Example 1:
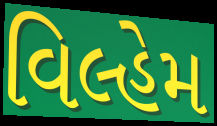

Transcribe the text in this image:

વિલ્હેમ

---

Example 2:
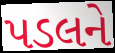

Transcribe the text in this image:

પડલને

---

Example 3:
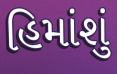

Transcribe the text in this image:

હિમાંશું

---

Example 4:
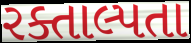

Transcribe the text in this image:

રક્તાલ્પતા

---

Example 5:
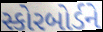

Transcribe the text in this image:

સ્કોરબોર્ડને